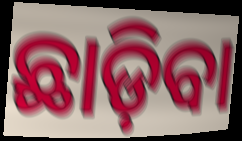
ଛାଡ଼ିବା